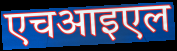
एचआइएल